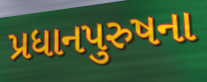
પ્રધાનપુરુષના